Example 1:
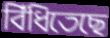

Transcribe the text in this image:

বিঁধিতেছে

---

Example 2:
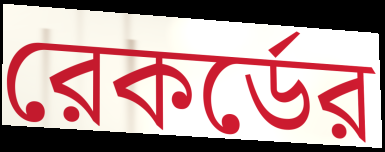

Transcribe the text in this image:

রেকর্ডের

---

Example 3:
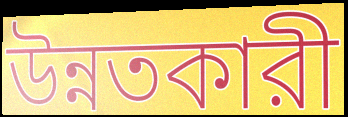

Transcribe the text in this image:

উন্নতকারী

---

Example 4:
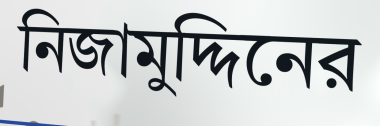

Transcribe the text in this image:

নিজামুদ্দিনের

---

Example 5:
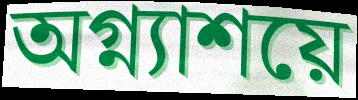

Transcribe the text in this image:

অগ্ন্যাশয়ে